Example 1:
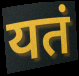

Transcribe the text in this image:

यतं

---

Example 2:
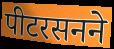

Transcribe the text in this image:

पीटरसनने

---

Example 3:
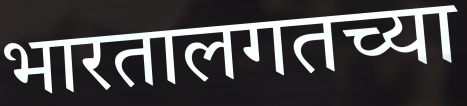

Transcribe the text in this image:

भारतालगतच्या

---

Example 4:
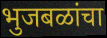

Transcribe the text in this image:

भुजबळांचा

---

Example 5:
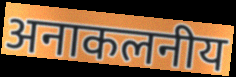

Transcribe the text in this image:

अनाकलनीय